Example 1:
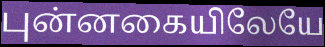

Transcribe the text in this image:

புன்னகையிலேயே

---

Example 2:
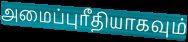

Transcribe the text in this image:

அமைப்புரீதியாகவும்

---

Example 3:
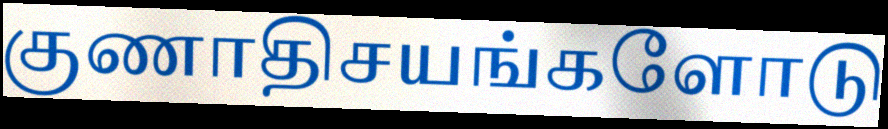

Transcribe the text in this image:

குணாதிசயங்களோடு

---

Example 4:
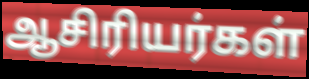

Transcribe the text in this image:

ஆசிரியர்கள்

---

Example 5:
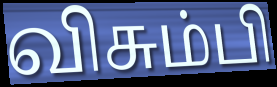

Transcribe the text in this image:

விசும்பி